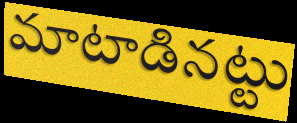
మాటాడినట్టు